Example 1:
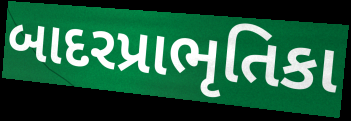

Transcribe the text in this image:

બાદરપ્રાભૃતિકા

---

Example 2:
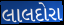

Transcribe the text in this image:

લાલદોરા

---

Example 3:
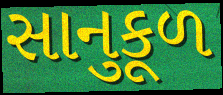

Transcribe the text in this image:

સાનુકૂળ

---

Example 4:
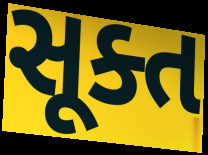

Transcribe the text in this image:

સૂક્ત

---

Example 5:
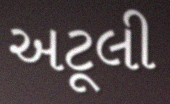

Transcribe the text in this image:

અટૂલી